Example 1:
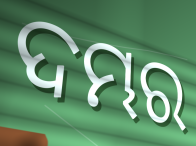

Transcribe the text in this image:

ଦମ୍ଭର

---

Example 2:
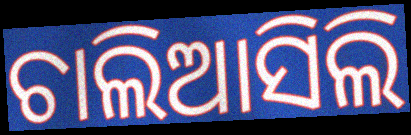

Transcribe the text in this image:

ଚାଲିଆସିଲି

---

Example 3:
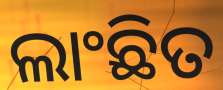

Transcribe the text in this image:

ଲାଂଛିତ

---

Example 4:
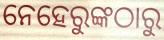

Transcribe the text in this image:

ନେହେରୁଙ୍କଠାରୁ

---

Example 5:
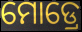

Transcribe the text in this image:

ମୋଡ୍ରେ